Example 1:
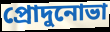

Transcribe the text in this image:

প্রোদুনোভা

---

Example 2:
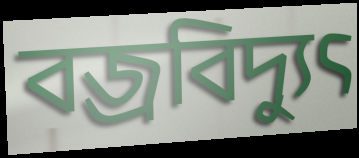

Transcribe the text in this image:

বজ্রবিদ্যুৎ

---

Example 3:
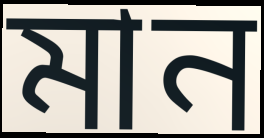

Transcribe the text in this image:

মান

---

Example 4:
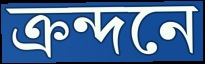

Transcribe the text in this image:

ক্রন্দনে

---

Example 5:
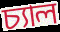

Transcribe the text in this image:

চ্যাল